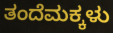
ತಂದೆಮಕ್ಕಳು